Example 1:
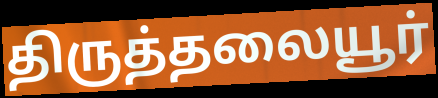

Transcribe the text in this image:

திருத்தலையூர்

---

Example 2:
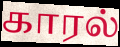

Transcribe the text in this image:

காரல்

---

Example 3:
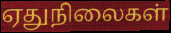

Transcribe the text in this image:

ஏதுநிலைகள்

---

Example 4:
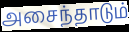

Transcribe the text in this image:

அசைந்தாடும்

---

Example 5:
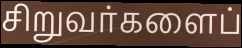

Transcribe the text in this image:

சிறுவர்களைப்